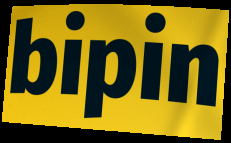
bipin